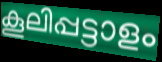
കൂലിപ്പട്ടാളം